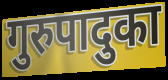
गुरुपादुका